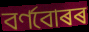
বৰ্ণবোৰৰ